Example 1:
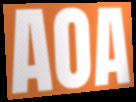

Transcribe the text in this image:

AOA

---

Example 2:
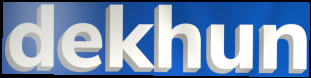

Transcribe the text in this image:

dekhun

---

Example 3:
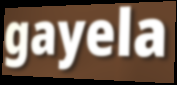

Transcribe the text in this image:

gayela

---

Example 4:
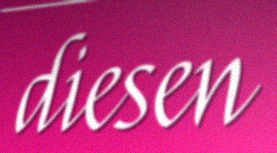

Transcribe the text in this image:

diesen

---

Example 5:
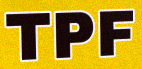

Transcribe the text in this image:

TPF